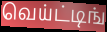
வெய்ட்டிங்